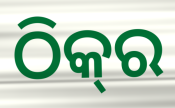
ଠିକ୍‍ର